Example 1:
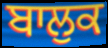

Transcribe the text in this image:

ਬਾਲੁਕ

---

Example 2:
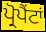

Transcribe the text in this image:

ਪ੍ਰੋਪੈਂਟਾਂ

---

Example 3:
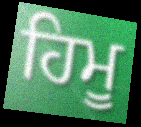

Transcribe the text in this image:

ਹਿਮੂ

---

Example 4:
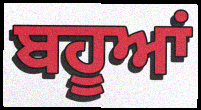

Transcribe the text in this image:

ਬਹੂਆਂ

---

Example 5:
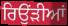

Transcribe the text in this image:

ਰਿਉਂੜੀਆਂ